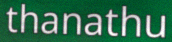
thanathu